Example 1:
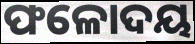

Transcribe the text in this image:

ଫଳୋଦୟ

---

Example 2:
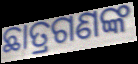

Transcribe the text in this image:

ଛାତ୍ରଗଣଙ୍କ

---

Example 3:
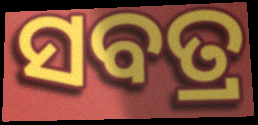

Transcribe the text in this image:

ସବତ୍ର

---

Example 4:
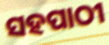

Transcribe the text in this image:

ସହପାଠୀ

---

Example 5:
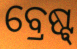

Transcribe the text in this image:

ବ୍ରେଷ୍ଟ୍